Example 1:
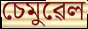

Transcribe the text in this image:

চেমুৱেল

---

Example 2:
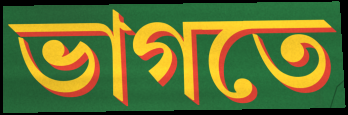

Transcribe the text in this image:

ভাগতে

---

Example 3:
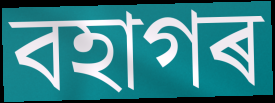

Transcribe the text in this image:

বহাগৰ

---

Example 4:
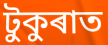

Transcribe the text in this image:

টুকুৰাত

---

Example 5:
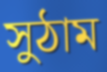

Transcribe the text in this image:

সুঠাম